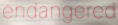
endangered